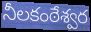
నీలకంఠేశ్వర